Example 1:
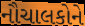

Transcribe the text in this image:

નૌચાલકોને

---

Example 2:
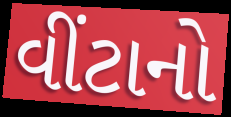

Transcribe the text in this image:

વીંટાનો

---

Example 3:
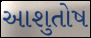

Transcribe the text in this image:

આશુતોષ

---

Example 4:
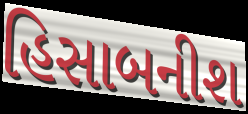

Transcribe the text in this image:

હિસાબનીશ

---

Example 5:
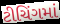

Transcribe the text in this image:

ટીચિંગમાં